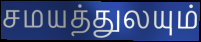
சமயத்துலயும்